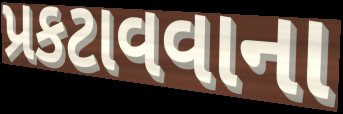
પ્રકટાવવાના